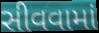
સીવવામાં